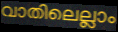
വാതിലെല്ലാം